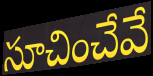
సూచించేవే